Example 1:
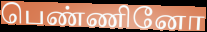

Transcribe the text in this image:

பெண்ணினோ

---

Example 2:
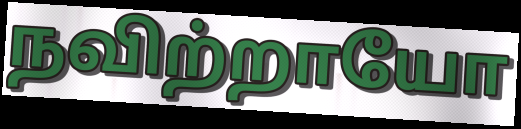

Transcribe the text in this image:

நவிற்றாயோ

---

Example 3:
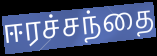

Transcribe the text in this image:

ஈரச்சந்தை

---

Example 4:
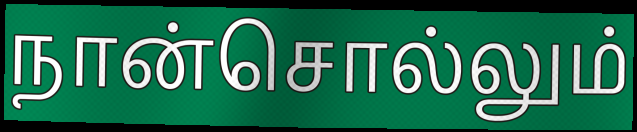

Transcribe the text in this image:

நான்சொல்லும்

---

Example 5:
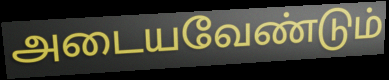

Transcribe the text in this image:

அடையவேண்டும்